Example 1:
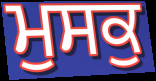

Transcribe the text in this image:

ਮੁਸਕੁ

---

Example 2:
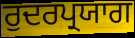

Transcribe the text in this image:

ਰੁਦਰਪ੍ਰਯਾਗ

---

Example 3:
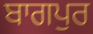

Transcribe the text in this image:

ਬਾਗਪੁਰ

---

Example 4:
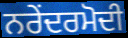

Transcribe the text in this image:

ਨਰੇਂਦਰਮੋਦੀ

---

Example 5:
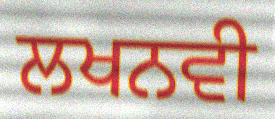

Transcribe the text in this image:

ਲਖਨਵੀ